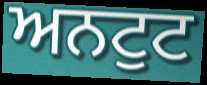
ਅਨਟੁਟ